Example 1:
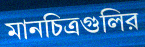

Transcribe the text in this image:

মানচিত্রগুলির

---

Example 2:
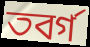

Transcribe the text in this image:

তবর্গ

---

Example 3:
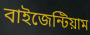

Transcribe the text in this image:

বাইজেন্টিয়াম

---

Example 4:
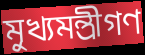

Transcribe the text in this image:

মুখ্যমন্ত্রীগণ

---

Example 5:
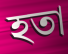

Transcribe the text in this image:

হতা